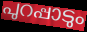
പുറപ്പാടും